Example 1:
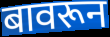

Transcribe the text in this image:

बावरून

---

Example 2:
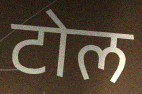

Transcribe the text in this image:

टोल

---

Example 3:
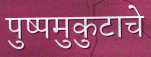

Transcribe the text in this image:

पुष्पमुकुटाचे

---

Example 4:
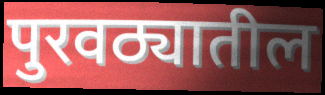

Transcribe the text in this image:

पुरवठ्यातील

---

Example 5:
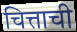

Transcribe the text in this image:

चित्ताची